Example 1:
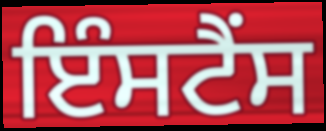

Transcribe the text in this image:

ਇੰਸਟੈਂਸ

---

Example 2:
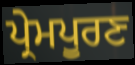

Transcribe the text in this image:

ਪ੍ਰੇਮਪੂਰਣ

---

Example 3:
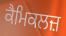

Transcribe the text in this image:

ਕੈਮਿਕਲਜ਼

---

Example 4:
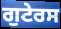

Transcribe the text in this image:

ਗੁਟੇਰਸ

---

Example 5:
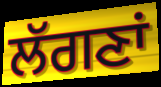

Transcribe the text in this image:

ਲੱਗਣਾਂ